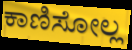
ಕಾಣಿಸೋಲ್ಲ